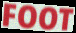
FOOT